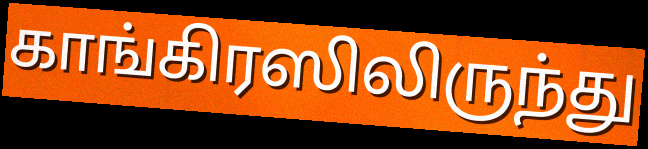
காங்கிரஸிலிருந்து